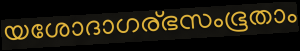
യശോദാഗര്ഭസംഭൂതാം